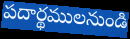
పదార్థములనుండి